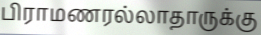
பிராமணரல்லாதாருக்கு